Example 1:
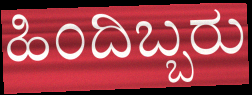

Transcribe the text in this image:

ಹಿಂದಿಬ್ಬರು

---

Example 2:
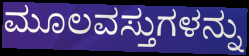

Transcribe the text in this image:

ಮೂಲವಸ್ತುಗಳನ್ನು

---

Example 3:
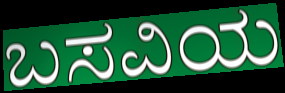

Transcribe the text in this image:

ಬಸವಿಯ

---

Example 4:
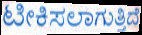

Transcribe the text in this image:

ಟೀಕಿಸಲಾಗುತ್ತಿದೆ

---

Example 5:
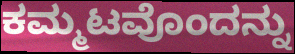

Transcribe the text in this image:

ಕಮ್ಮಟವೊಂದನ್ನು